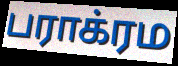
பராக்ரம